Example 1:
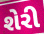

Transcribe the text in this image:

શેરી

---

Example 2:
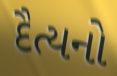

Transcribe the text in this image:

દૈત્યનો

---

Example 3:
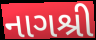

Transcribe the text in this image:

નાગશ્રી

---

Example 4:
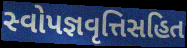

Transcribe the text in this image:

સ્વોપજ્ઞવૃત્તિસહિત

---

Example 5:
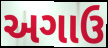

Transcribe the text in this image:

અગાઉ